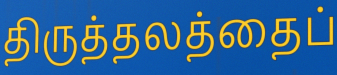
திருத்தலத்தைப்